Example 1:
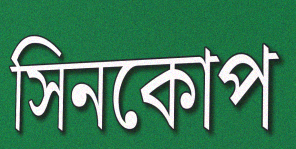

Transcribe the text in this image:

সিনকোপ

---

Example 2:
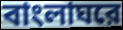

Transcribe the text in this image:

বাংলাঘরে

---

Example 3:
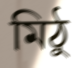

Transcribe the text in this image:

মিঠু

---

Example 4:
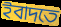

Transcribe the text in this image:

ইবাদতে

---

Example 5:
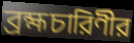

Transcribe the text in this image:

ব্রহ্মচারিণীর